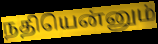
நதியென்னும்